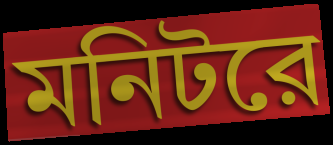
মনিটরে